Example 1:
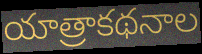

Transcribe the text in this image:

యాత్రాకథనాల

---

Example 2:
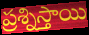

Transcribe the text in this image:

ప్రశ్నిస్తాయి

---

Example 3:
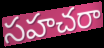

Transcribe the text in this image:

సహచరా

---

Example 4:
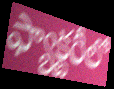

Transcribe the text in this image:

ఫ్యాక్టరీలో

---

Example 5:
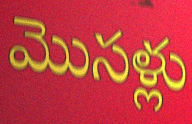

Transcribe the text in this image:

మొసళ్లు